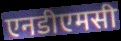
एनडीएमसी